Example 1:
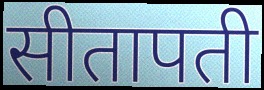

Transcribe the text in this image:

सीतापती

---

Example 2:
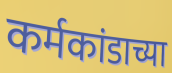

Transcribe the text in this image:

कर्मकांडाच्या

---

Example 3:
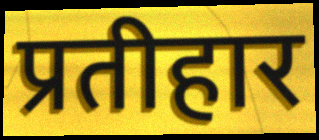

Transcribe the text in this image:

प्रतीहार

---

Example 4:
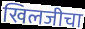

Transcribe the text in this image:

खिलजीचा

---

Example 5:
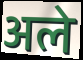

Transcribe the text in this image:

अले